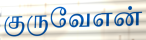
குருவேஎன்